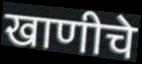
खाणीचे